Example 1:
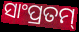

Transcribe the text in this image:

ସାଂପ୍ରତମ୍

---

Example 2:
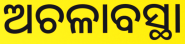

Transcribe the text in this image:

ଅଚଳାବସ୍ଥା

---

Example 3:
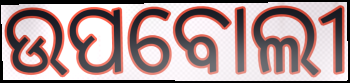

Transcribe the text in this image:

ଉପବୋଲୀ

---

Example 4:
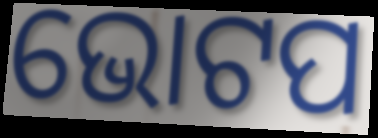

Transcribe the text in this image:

ଭୋଟପ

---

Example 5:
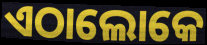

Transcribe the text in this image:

ଏଠାଲୋକେ